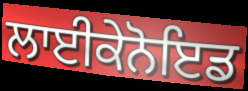
ਲਾਈਕੇਨੋਇਡ